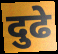
दुढे